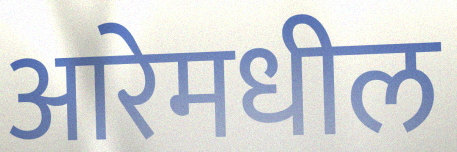
आरेमधील